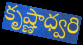
కృష్ణాధ్వరి